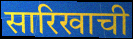
सारिखाची